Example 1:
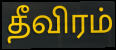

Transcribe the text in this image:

தீவிரம்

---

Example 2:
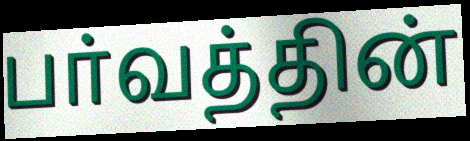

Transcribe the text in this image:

பர்வத்தின்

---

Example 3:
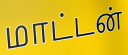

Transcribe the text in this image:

மாட்டன்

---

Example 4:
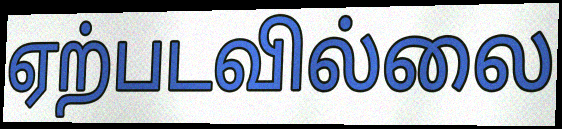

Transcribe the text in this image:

ஏற்படவில்லை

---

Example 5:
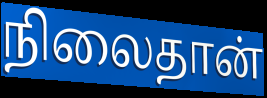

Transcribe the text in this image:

நிலைதான்